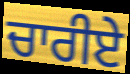
ਚਾਰੀਏ